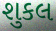
શુકલ